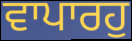
ਵਾਪਾਰਹੁ